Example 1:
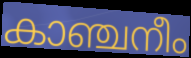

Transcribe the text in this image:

കാഞ്ചനീം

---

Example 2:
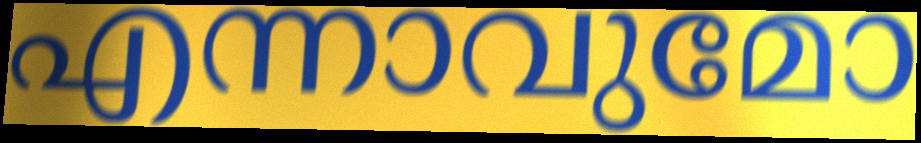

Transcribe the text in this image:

എന്നാവുമോ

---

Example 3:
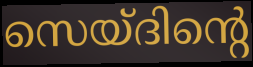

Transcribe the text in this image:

സെയ്ദിന്റെ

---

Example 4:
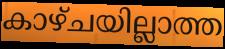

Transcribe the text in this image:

കാഴ്ചയില്ലാത്ത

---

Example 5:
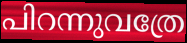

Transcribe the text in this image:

പിറന്നുവത്രേ